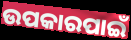
ଉପକାରପାଇଁ